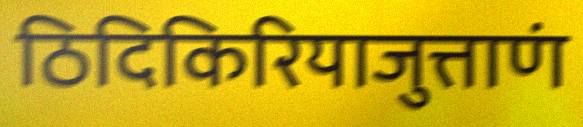
ठिदिकिरियाजुत्ताणं